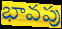
భావపు